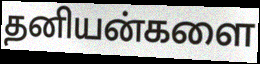
தனியன்களை